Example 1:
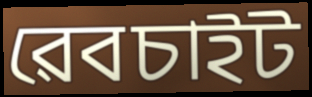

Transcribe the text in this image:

ৱেবচাইট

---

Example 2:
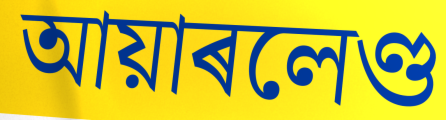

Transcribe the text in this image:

আয়াৰলেণ্ড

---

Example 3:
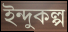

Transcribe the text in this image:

ইন্দুকল্প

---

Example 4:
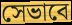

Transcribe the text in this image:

সেভাবে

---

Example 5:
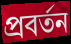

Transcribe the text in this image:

প্ৰবৰ্তন